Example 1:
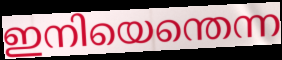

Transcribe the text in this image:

ഇനിയെന്തെന്ന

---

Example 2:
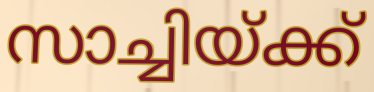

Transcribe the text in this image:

സാച്ചിയ്ക്ക്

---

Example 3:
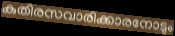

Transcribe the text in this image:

കുതിരസവാരിക്കാരനോടും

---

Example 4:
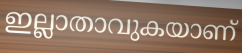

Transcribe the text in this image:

ഇല്ലാതാവുകയാണ്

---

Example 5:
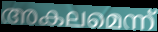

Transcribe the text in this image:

അകലമെന്ന്